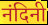
नंदिनी